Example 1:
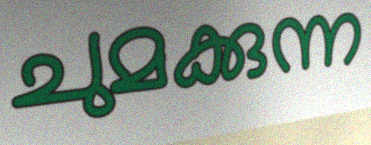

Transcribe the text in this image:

ചുമക്കുന്ന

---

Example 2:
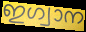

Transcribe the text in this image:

ഇഗ്വാന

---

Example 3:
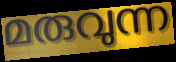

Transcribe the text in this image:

മരുവുന്ന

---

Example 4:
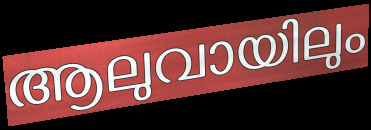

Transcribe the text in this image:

ആലുവായിലും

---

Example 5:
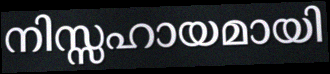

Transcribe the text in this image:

നിസ്സഹായമായി